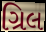
ગ્રિલ